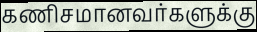
கணிசமானவர்களுக்கு